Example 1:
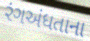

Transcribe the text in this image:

રંગઅંધતાના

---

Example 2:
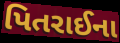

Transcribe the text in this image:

પિતરાઈના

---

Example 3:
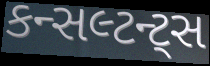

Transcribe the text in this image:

કન્સલ્ટન્ટ્સ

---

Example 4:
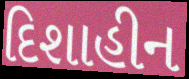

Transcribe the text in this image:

દિશાહીન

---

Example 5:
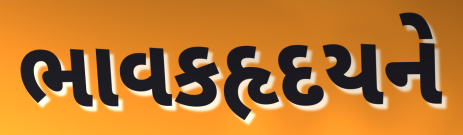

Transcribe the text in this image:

ભાવકહૃદયને